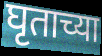
घृताच्या